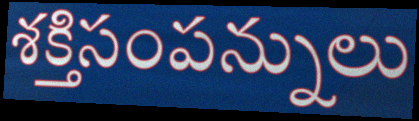
శక్తిసంపన్నులు